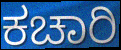
ಕಚಾರಿ